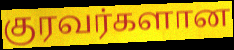
குரவர்களான